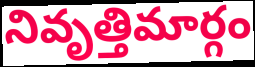
నివృత్తిమార్గం